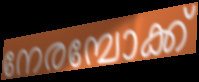
നേരമ്പോക്ക്